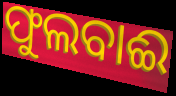
ଫୁଲବାଈ